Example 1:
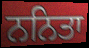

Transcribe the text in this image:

ਨਨਿਤਾ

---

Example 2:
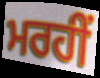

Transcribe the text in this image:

ਮਰਹੀਂ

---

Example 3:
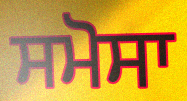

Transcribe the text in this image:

ਸਮੋਸਾ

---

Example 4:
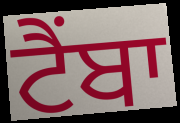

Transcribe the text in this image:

ਟੈਂਬਾ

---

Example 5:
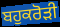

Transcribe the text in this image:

ਬਹੁਕਰੋੜੀ